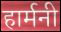
हार्मनी